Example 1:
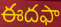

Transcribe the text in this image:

ఈదఫా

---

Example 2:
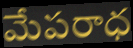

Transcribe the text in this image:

మేపరాధ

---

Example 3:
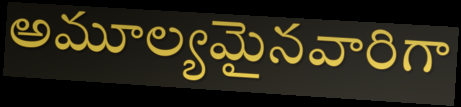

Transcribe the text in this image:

అమూల్యమైనవారిగా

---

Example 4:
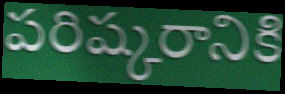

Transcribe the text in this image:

పరిష్కరానికి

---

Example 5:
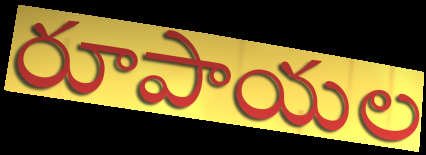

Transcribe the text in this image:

రూపాయల